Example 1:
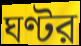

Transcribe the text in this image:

ঘণ্টর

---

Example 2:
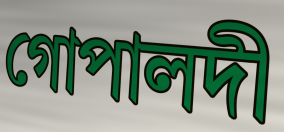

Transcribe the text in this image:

গোপালদী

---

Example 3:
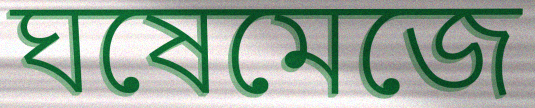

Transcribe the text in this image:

ঘষেমেজে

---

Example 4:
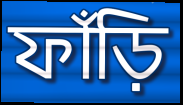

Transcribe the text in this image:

ফাঁড়ি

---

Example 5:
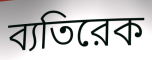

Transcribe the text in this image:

ব্যতিরেক